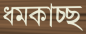
ধমকাচ্ছ